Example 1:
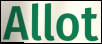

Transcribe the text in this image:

Allot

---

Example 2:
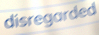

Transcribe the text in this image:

disregarded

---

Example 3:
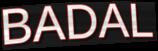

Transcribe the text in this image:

BADAL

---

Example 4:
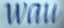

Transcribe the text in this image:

wau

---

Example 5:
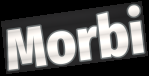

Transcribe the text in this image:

Morbi